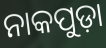
ନାକପୁଡ଼ା